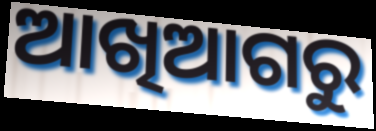
ଆଖିଆଗରୁ